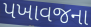
પખાવજના